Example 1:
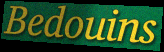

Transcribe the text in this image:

Bedouins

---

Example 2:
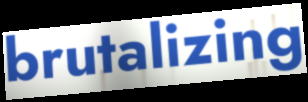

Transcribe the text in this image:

brutalizing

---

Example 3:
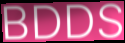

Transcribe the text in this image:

BDDS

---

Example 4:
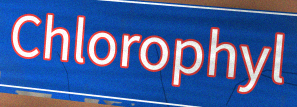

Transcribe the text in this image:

Chlorophyl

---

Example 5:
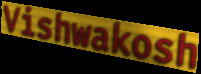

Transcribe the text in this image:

Vishwakosh